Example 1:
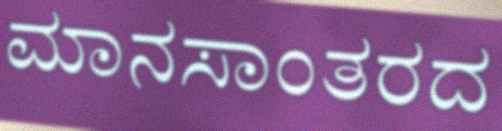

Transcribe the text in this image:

ಮಾನಸಾಂತರದ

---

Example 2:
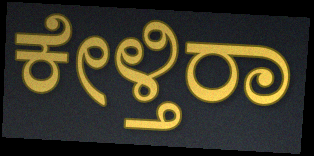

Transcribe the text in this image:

ಕೇಳ್ತಿರಾ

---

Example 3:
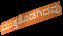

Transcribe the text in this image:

ಮುತ್ತತೊಡಗಿದವು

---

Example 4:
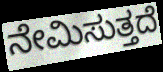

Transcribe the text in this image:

ನೇಮಿಸುತ್ತದೆ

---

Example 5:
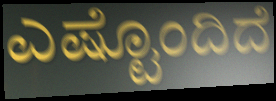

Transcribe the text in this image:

ಎಷ್ಟೊಂದಿದೆ